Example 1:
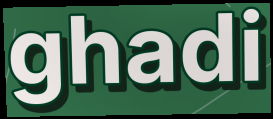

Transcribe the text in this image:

ghadi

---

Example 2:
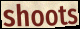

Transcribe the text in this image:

shoots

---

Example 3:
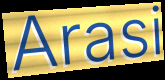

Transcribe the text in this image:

Arasi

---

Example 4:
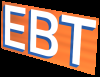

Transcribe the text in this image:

EBT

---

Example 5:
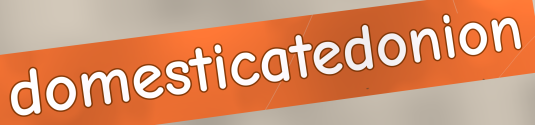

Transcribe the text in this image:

domesticatedonion